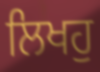
ਲਿਖਹੁ